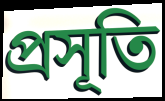
প্ৰসূতি